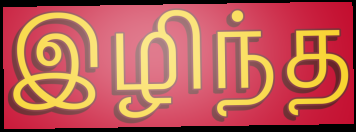
இழிந்த